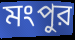
মংপুর